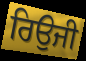
ਰਿਉਜੀ